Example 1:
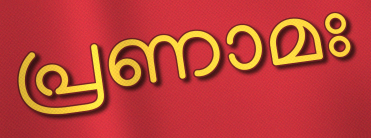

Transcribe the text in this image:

പ്രണാമഃ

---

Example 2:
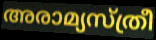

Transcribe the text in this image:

അരാമ്യസ്ത്രീ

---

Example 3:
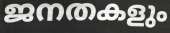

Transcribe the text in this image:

ജനതകളും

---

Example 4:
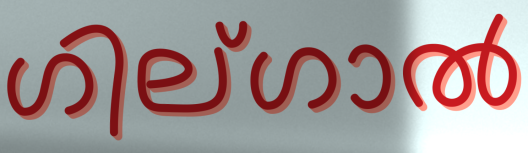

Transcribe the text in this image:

ഗില്ഗാൽ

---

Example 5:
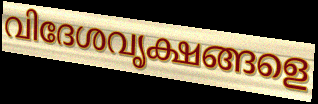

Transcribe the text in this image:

വിദേശവൃക്ഷങ്ങളെ